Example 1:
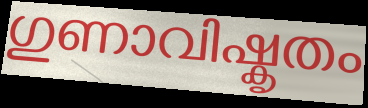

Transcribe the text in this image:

ഗുണാവിഷ്കൃതം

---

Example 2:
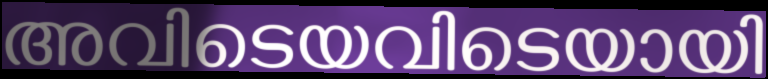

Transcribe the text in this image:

അവിടെയവിടെയായി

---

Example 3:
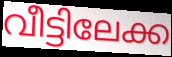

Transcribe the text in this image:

വീട്ടിലേക്ക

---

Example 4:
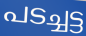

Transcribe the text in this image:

പടച്ചട്ട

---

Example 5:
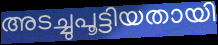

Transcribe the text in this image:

അടച്ചുപൂട്ടിയതായി